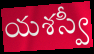
యశస్వీ